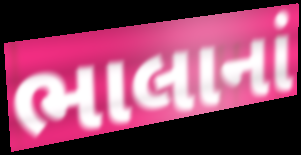
ભાલાનાં